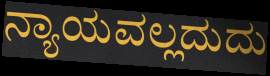
ನ್ಯಾಯವಲ್ಲದುದು